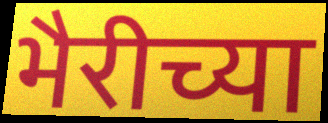
भैरीच्या